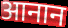
आनान